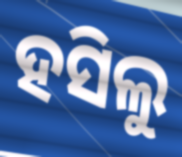
ହସିଲୁ